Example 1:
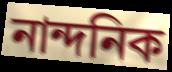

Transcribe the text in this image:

নান্দনিক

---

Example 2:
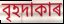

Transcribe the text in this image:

বৃহদাকাৰ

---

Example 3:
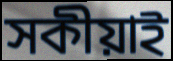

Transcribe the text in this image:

সকীয়াই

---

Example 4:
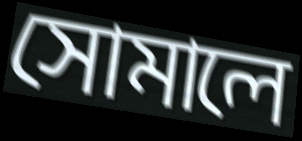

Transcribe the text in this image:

সোমালে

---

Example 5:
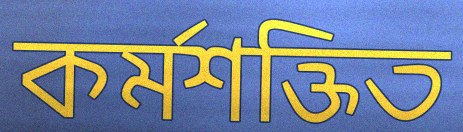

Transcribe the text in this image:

কৰ্মশক্তিত